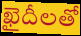
ఖైదీలతో